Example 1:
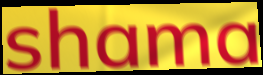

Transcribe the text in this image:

shama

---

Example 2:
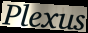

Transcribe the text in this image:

Plexus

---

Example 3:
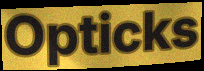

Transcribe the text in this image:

Opticks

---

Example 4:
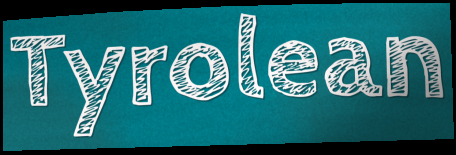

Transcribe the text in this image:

Tyrolean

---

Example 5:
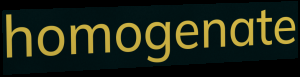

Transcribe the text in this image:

homogenate